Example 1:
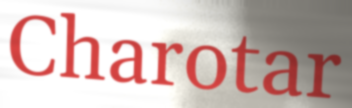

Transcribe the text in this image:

Charotar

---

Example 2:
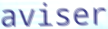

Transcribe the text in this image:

aviser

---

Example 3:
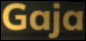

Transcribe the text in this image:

Gaja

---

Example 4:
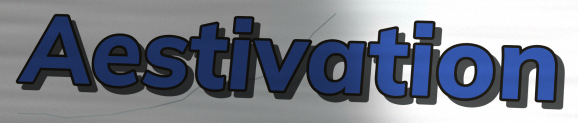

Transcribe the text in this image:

Aestivation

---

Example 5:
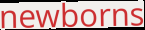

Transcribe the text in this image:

newborns